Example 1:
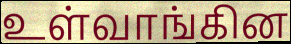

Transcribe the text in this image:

உள்வாங்கின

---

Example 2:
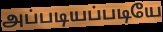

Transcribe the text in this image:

அப்படியப்படியே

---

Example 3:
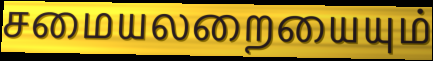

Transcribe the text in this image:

சமையலறையையும்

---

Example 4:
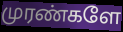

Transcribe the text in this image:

முரண்களே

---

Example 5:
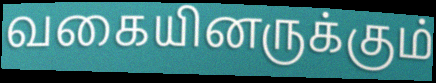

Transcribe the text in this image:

வகையினருக்கும்